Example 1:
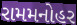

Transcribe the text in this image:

રામમનોહર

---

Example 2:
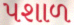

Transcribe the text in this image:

પશાળ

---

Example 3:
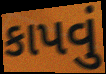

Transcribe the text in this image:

કાપવું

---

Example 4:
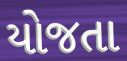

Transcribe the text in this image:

યોજતા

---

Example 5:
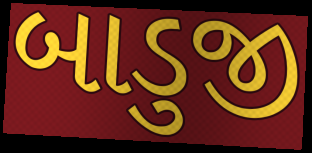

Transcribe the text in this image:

બાડુજી